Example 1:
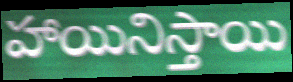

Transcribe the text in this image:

హాయినిస్తాయి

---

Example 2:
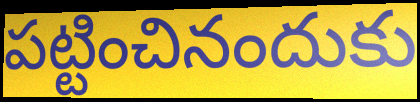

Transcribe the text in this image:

పట్టించినందుకు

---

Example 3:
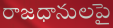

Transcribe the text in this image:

రాజధానులపై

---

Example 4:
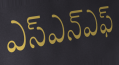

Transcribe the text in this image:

ఎస్ఎన్ఎఫ్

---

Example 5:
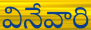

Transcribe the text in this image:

వినేవారి